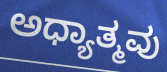
ಅಧ್ಯಾತ್ಮವು